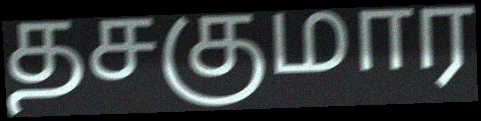
தசகுமார